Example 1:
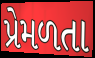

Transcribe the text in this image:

પ્રેમળતા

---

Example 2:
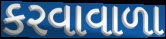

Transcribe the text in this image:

કરવાવાળા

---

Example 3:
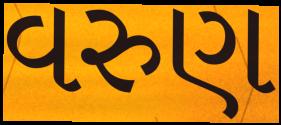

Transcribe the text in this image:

વરુણ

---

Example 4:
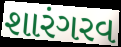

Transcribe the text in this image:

શારંગરવ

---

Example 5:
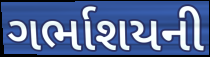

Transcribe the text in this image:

ગર્ભાશયની